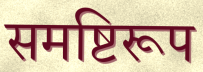
समष्टिरूप